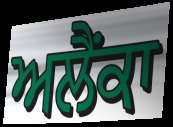
ਅਲੈਂਕਾ